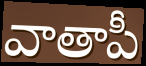
వాతాపీ